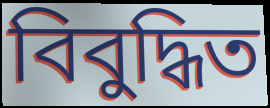
বিবুদ্ধিত